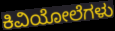
ಕಿವಿಯೋಲೆಗಳು